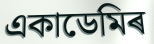
একাডেমিৰ